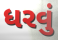
ધરવું